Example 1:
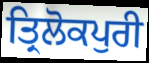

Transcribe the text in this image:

ਤ੍ਰਿਲੋਕਪੁਰੀ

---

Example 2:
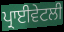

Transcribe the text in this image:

ਪ੍ਰਾਈਵੇਟਲੀ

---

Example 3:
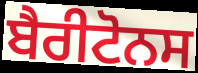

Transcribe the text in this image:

ਬੈਰੀਟੋਨਸ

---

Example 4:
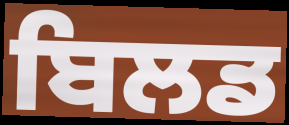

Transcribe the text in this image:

ਬਿਲਡ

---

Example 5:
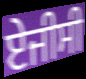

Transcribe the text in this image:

ਏਜੀਸੀ